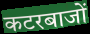
कटरबाजों